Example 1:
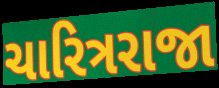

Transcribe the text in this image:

ચારિત્રરાજા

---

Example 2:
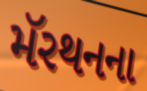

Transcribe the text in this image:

મૅરથનના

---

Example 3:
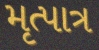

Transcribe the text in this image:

મૃત્પાત્ર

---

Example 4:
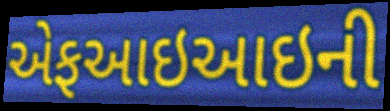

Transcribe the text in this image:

એફઆઇઆઇની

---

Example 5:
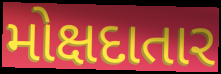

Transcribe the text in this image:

મોક્ષદાતાર